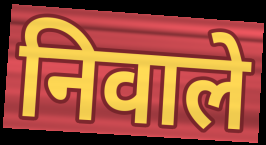
निवाले